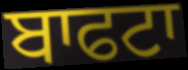
ਬਾਫਟਾ